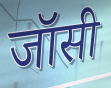
जॉसी